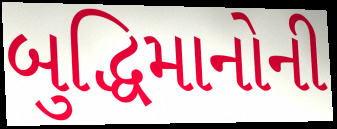
બુદ્ધિમાનોની